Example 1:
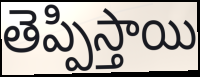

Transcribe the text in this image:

తెప్పిస్తాయి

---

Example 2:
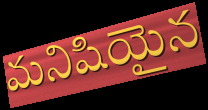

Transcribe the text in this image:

మనిషియైన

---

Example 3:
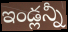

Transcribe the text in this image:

ఇండ్లన్నీ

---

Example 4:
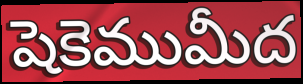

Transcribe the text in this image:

షెకెముమీద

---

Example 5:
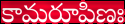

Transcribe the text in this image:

కామరూపిణః